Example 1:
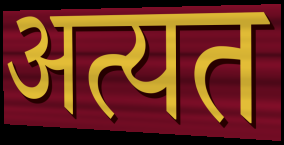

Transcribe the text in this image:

अत्यत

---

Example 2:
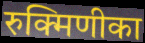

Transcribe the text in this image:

रुक्मिणीका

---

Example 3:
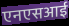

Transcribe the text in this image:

एनएसआई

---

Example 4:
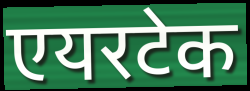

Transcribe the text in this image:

एयरटेक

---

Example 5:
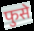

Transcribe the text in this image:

फुसे